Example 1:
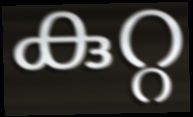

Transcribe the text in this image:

കുറ്റ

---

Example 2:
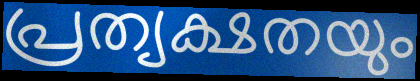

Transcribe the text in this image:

പ്രത്യക്ഷതയും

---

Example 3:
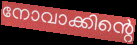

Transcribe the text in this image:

നോവാക്കിന്റെ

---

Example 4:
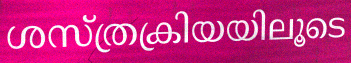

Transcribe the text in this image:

ശസ്ത്രക്രിയയിലൂടെ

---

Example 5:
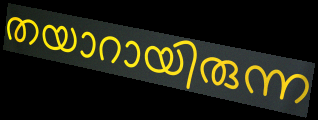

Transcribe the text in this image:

തയാറായിരുന്ന